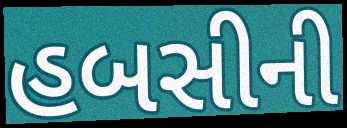
હબસીની